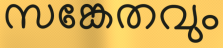
സങ്കേതവും